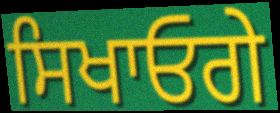
ਸਿਖਾਓਗੇ